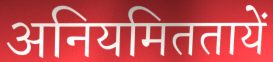
अनियमिततायें